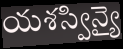
యశస్విన్యై